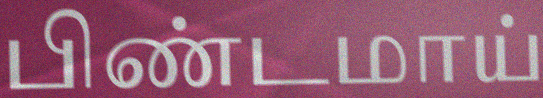
பிண்டமாய்